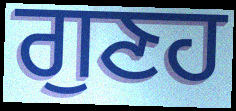
ਗੁਣਹ